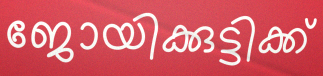
ജോയിക്കുട്ടിക്ക്